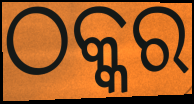
ଠକ୍କର